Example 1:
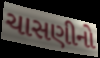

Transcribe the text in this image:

ચાસણીનો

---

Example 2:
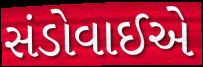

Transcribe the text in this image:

સંડોવાઈએ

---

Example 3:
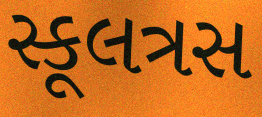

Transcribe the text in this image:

સ્કૂલત્રસ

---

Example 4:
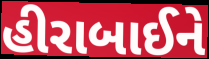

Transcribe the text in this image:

હીરાબાઈને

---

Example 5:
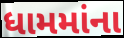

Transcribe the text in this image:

ધામમાંના